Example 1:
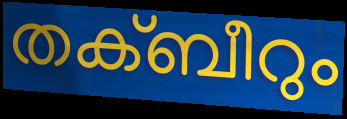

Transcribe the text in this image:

തക്ബീറും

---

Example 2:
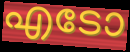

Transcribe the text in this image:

എടോ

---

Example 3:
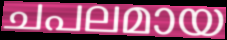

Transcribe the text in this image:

ചപലമായ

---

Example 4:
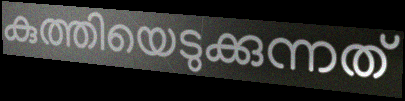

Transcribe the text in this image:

കുത്തിയെടുക്കുന്നത്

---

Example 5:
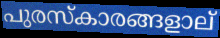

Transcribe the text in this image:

പുരസ്കാരങ്ങളാല്